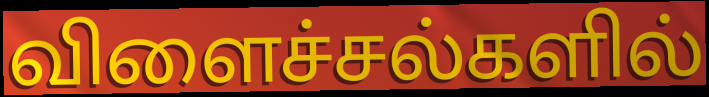
விளைச்சல்களில்